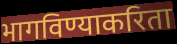
भागविण्याकरिता